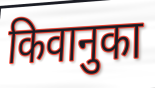
किवानुका